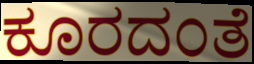
ಕೂರದಂತೆ